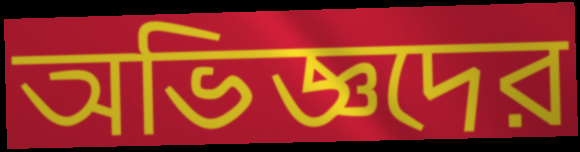
অভিজ্ঞদের